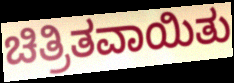
ಚಿತ್ರಿತವಾಯಿತು